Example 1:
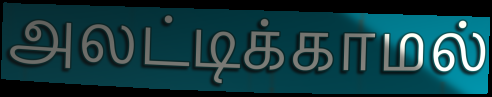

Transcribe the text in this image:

அலட்டிக்காமல்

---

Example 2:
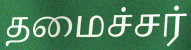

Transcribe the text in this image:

தமைச்சர்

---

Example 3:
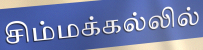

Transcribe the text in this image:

சிம்மக்கல்லில்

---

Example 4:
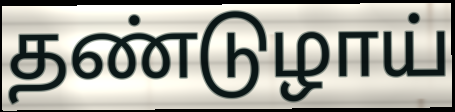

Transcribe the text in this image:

தண்டுழாய்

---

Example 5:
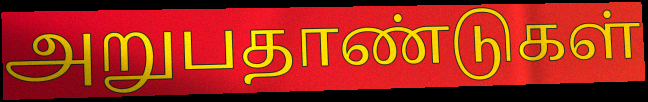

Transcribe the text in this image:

அறுபதாண்டுகள்